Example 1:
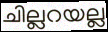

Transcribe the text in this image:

ചില്ലറയല്ല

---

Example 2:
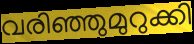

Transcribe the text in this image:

വരിഞ്ഞുമുറുക്കി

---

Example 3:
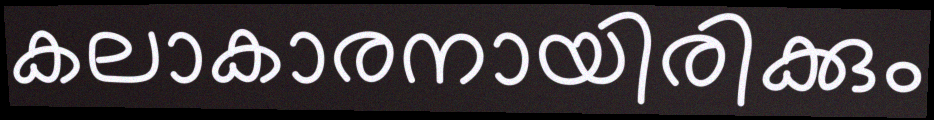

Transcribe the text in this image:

കലാകാരനായിരിക്കും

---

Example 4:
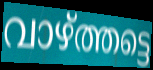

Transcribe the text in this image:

വാഴ്ത്തട്ടെ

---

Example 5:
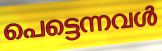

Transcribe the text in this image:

പെട്ടെന്നവൾ